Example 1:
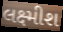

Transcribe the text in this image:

લક્ષ્મીશ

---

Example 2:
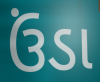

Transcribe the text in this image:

ઉંડા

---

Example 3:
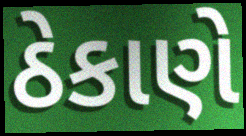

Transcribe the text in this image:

ઠેકાણે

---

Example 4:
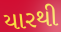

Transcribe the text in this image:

યારથી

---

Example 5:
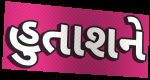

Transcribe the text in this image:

હુતાશને